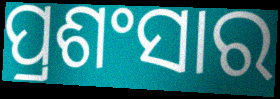
ପ୍ରଶଂସାର